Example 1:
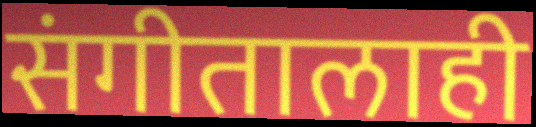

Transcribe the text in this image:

संगीतालाही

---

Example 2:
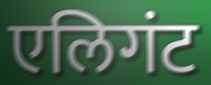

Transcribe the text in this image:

एलिगंट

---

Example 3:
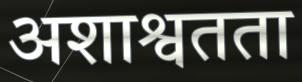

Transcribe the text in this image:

अशाश्वतता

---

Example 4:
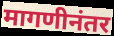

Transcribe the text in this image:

मागणीनंतर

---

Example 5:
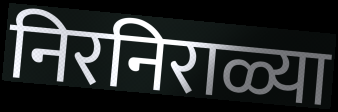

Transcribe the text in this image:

निरनिराळ्या